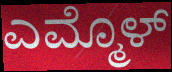
ಎಮ್ಮೊಳ್